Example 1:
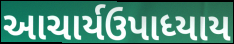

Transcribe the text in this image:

આચાર્યઉપાધ્યાય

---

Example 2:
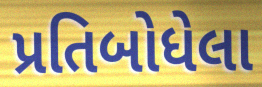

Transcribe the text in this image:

પ્રતિબોધેલા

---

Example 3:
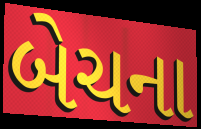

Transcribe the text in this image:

બેચના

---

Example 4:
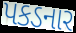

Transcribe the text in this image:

પકડનાર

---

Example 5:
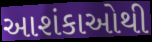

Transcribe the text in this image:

આશંકાઓથી